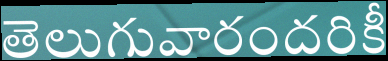
తెలుగువారందరికీ